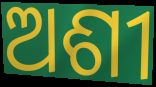
ଅଶୀ